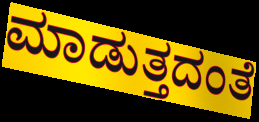
ಮಾಡುತ್ತದಂತೆ